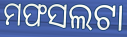
ମଫସଲଟା